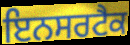
ਇਨਸਰਟੈਕ